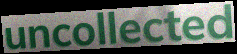
uncollected